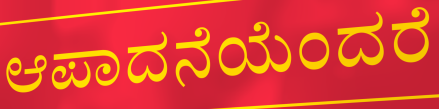
ಆಪಾದನೆಯೆಂದರೆ